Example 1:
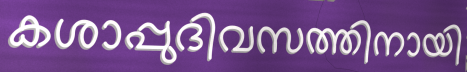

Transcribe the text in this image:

കശാപ്പുദിവസത്തിനായി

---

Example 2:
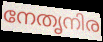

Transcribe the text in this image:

നേതൃനിര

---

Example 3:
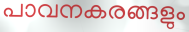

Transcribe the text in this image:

പാവനകരങ്ങളും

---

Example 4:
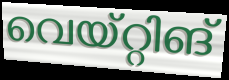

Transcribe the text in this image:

വെയ്റ്റിങ്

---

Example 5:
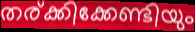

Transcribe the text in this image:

തര്ക്കിക്കേണ്ടിയും